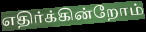
எதிர்க்கின்றோம்